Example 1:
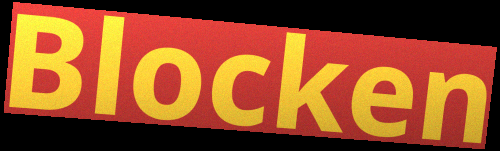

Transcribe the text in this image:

Blocken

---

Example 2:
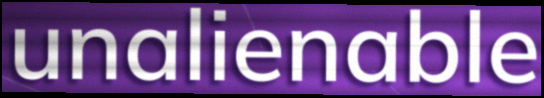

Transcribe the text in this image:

unalienable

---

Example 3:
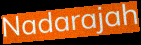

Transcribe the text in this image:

Nadarajah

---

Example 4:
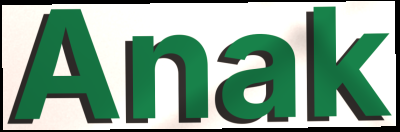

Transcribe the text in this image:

Anak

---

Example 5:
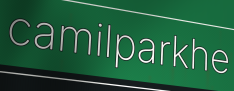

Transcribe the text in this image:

camilparkhe